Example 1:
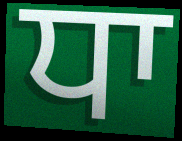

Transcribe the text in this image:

ਧਾ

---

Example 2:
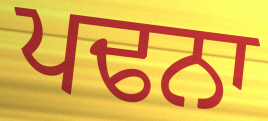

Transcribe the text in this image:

ਪਢਨਾ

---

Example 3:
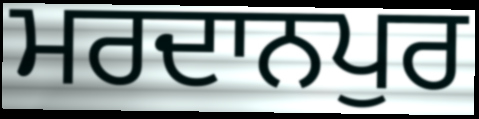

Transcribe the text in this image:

ਮਰਦਾਨਪੁਰ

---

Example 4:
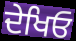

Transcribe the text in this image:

ਦੇਖਿਓ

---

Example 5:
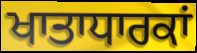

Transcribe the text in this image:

ਖਾਤਾਧਾਰਕਾਂ